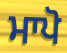
ਮਾਪੋ